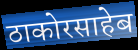
ठाकोरसाहेब